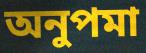
অনুপমা